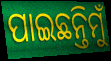
ପାଇଛନ୍ତିମୁଁ